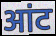
आंट